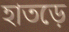
হাতড়ে